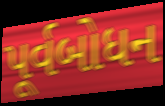
પૂર્વબોધન